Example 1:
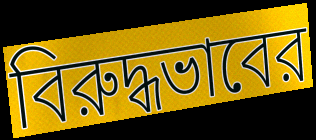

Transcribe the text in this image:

বিরুদ্ধভাবের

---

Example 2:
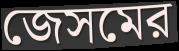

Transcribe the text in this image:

জেসমের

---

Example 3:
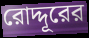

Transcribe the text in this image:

রোদ্দূরের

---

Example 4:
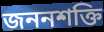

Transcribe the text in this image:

জননশক্তি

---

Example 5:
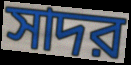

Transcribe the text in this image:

সাদর